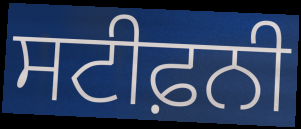
ਸਟੀਫ਼ਨੀ